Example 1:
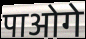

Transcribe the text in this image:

पाओगे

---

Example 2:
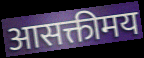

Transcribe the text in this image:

आसक्तीमय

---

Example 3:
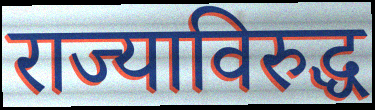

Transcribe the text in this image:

राज्याविरुद्ध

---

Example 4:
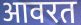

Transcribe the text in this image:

आवरत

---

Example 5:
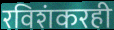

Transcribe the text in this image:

रविशंकरही